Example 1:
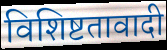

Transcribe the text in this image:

विशिष्टतावादी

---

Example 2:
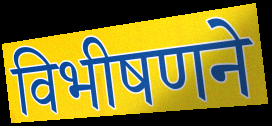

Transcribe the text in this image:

विभीषणने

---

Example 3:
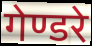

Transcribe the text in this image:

गेण्डरे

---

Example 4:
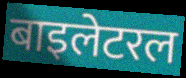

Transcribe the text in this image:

बाइलेटरल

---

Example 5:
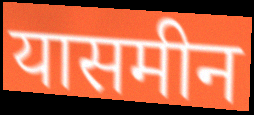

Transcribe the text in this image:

यासमीन